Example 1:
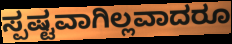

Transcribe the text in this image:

ಸ್ಪಷ್ಟವಾಗಿಲ್ಲವಾದರೂ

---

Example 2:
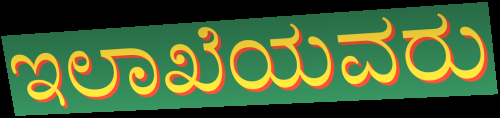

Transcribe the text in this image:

ಇಲಾಖೆಯವರು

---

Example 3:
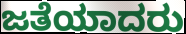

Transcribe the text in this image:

ಜತೆಯಾದರು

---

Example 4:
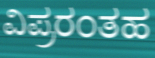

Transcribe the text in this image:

ವಿಪ್ರರಂತಹ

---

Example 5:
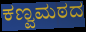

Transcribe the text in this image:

ಕಣ್ವಮಠದ